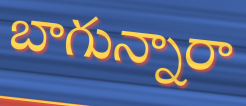
బాగున్నారా